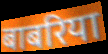
बाबरिया